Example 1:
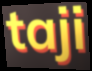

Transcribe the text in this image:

taji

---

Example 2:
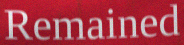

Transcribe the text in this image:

Remained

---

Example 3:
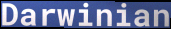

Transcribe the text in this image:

Darwinian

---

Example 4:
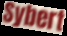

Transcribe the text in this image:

Sybert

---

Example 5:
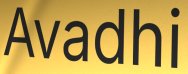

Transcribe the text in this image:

Avadhi